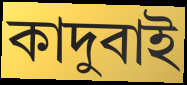
কাদুবাই